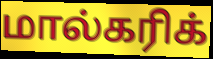
மால்கரிக்